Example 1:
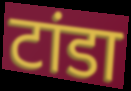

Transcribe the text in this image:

टांडा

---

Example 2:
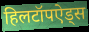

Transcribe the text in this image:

हिलटॉपऐड्स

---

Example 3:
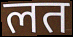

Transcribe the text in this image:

लत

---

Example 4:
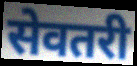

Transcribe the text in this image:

सेवतरी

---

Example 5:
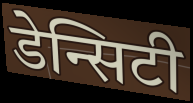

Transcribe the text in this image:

डेन्सिटी